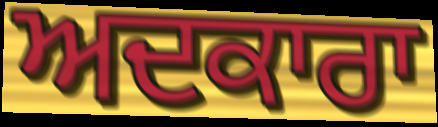
ਅਦਕਾਰਾ